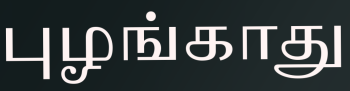
புழங்காது